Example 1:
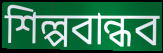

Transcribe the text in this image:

শিল্পবান্ধব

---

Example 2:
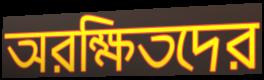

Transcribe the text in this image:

অরক্ষিতদের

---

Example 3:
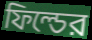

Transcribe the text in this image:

ফিল্ডের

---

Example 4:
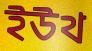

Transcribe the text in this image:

ইউথ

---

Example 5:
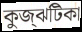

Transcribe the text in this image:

কুজ্‌ঝটিকা